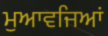
ਮੁਆਵਜਿਆਂ